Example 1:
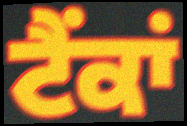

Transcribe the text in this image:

ਟੈਂਕਾਂ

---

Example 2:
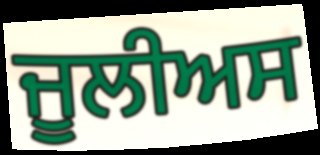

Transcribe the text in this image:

ਜੂਲੀਅਸ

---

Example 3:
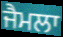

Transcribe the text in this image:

ਜੈਮਲਾ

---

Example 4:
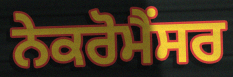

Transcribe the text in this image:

ਨੇਕਰੋਮੈਂਸਰ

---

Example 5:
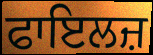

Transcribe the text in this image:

ਫਾਇਲਜ਼